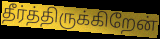
தீர்த்திருக்கிறேன்